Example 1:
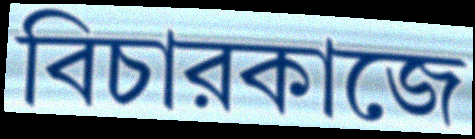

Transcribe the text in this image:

বিচারকাজে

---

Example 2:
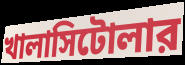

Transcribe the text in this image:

খালাসিটোলার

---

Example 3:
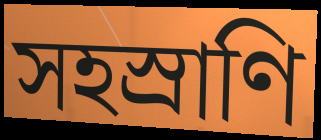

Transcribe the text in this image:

সহস্রাণি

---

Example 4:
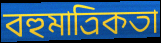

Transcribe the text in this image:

বহুমাত্রিকতা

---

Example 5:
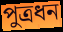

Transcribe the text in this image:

পুত্রধন